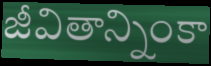
జీవితాన్నింకా